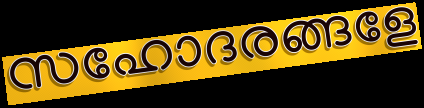
സഹോദരങ്ങളേ